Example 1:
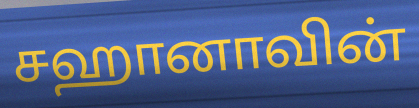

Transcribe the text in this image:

சஹானாவின்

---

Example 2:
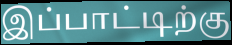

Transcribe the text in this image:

இப்பாட்டிற்கு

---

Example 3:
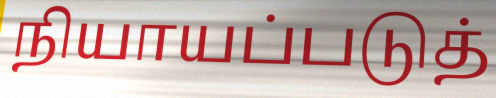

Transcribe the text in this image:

நியாயப்படுத்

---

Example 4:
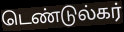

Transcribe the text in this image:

டெண்டுல்கர்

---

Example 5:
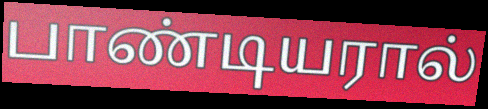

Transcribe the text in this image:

பாண்டியரால்